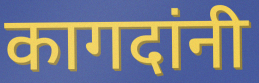
कागदांनी